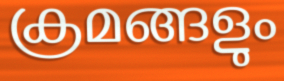
ക്രമങ്ങളും